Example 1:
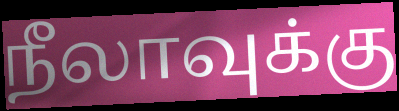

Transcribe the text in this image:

நீலாவுக்கு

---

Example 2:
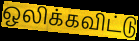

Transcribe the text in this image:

ஒலிக்கவிட்டு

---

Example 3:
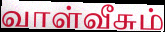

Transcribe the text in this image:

வாள்வீசும்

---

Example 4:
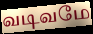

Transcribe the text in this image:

வடிவமே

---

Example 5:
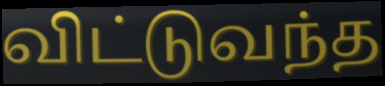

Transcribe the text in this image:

விட்டுவந்த